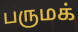
பருமக்